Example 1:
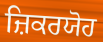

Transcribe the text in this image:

ਜ਼ਿਕਰਯੋਹ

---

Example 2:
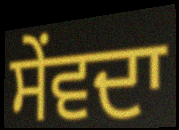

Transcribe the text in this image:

ਸੇਂਵਦਾ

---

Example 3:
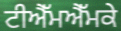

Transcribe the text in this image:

ਟੀਐੱਮਐੱਮਕੇ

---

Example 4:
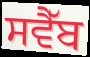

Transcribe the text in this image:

ਸਵੈੱਬ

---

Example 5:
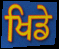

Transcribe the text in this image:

ਖਿਡੇ